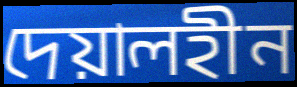
দেয়ালহীন